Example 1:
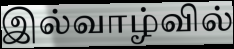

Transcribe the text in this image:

இல்வாழ்வில்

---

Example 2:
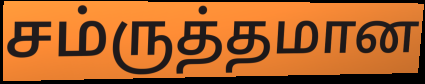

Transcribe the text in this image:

சம்ருத்தமான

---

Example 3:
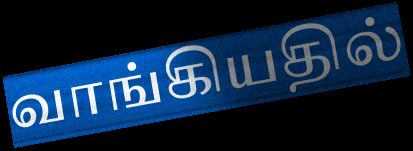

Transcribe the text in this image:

வாங்கியதில்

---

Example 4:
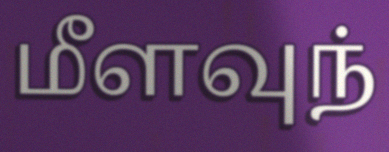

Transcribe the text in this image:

மீளவுந்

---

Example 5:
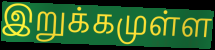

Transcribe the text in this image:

இறுக்கமுள்ள